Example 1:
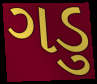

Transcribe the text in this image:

ગડુ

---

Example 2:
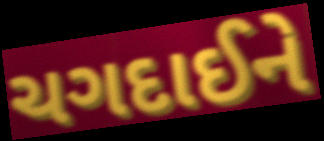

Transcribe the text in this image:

ચગદાઈને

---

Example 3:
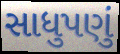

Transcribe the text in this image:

સાધુપણું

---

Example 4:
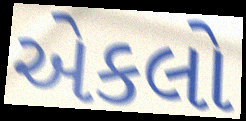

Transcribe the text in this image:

એકલો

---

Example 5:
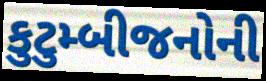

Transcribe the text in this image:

કુટુમ્બીજનોની